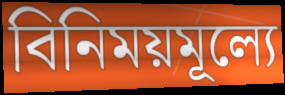
বিনিময়মূল্যে